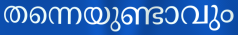
തന്നെയുണ്ടാവും